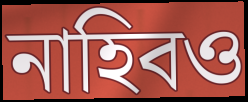
নাহিবও